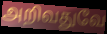
அறிவதுவே